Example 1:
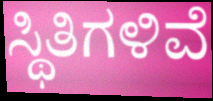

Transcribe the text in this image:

ಸ್ಥಿತಿಗಳಿವೆ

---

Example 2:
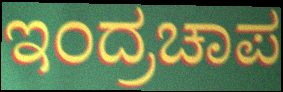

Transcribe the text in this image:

ಇಂದ್ರಚಾಪ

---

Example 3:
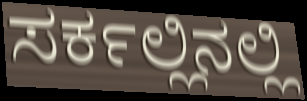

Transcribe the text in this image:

ಸರ್ಕಲ್ಲಿನಲ್ಲಿ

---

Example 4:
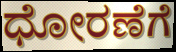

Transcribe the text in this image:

ಧೋರಣೆಗೆ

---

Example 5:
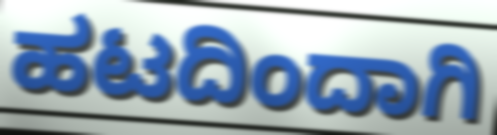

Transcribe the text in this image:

ಹಟದಿಂದಾಗಿ